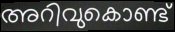
അറിവുകൊണ്ട്